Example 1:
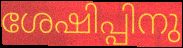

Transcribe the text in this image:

ശേഷിപ്പിനു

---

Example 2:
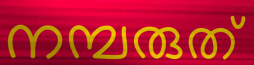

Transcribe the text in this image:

നമ്പരുത്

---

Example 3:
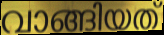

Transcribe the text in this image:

വാങ്ങിയത്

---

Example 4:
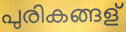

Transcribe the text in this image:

പുരികങ്ങള്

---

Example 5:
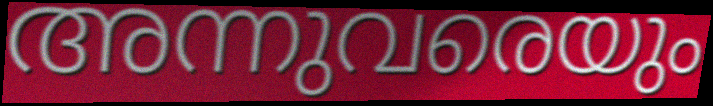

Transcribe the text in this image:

അന്നുവരെയും